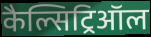
कैल्सिट्रिऑल